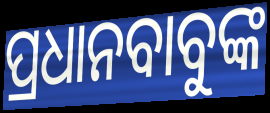
ପ୍ରଧାନବାବୁଙ୍କ